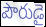
పౌరుడై